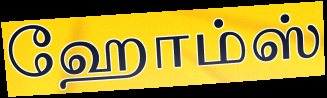
ஹோம்ஸ்